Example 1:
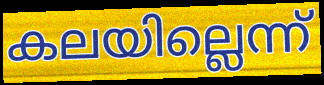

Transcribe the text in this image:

കലയില്ലെന്ന്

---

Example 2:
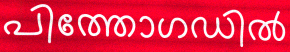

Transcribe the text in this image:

പിത്തോഗഡിൽ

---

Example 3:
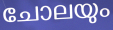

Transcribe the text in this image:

ചോലയും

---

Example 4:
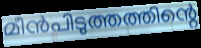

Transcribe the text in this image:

മീൻപിടുത്തത്തിന്റെ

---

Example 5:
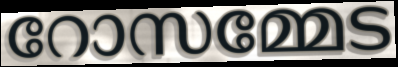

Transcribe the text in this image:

റോസമ്മേട